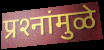
प्रश्नांमुळे